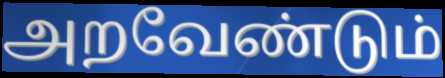
அறவேண்டும்